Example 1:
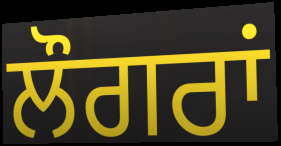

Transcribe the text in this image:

ਲੌਗਰਾਂ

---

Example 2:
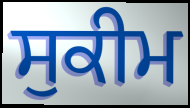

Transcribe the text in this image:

ਸੁਕੀਮ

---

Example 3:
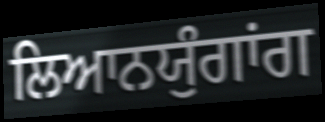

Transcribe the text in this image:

ਲਿਆਨਯੁੰਗਾਂਗ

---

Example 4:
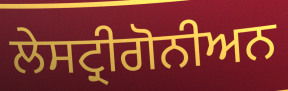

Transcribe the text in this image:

ਲੇਸਟ੍ਰੀਗੋਨੀਅਨ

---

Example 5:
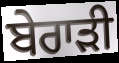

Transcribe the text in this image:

ਬੇਰਾੜੀ